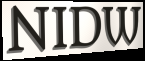
NIDW